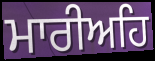
ਮਾਰੀਅਹਿ